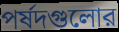
পর্ষদগুলোর